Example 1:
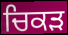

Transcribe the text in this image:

ਚਿਕੜ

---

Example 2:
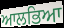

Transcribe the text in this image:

ਆਲਭਿਆ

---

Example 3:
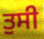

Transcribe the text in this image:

ਤੁਸੀ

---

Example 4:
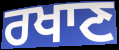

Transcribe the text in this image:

ਰਖਾਣ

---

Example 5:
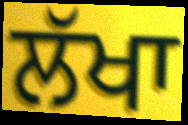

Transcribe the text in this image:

ਲੱਖਾ